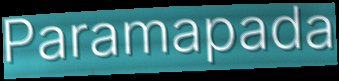
Paramapada